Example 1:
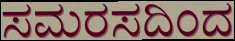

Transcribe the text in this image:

ಸಮರಸದಿಂದ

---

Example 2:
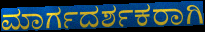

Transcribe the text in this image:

ಮಾರ್ಗದರ್ಶಕರಾಗಿ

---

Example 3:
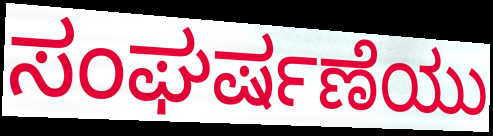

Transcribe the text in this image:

ಸಂಘರ್ಷಣೆಯು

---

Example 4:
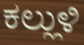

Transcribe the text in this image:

ಕಲ್ಲುಳಿ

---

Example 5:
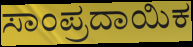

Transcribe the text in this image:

ಸಾಂಪ್ರದಾಯಿಕ